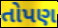
તોપણ